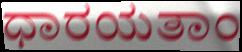
ಧಾರಯತಾಂ